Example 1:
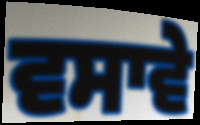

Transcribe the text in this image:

ਵਸਾਵੇ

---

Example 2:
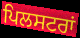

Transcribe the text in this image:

ਪਿਲਸਟਰਾਂ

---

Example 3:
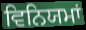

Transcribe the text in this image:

ਵਿਨਿਯਮਾਂ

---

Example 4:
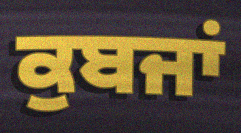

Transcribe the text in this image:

ਕੁਬਜਾਂ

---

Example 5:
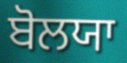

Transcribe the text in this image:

ਬੋਲਯਾ